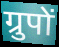
ग्रुपों